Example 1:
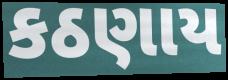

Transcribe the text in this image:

કઠણાય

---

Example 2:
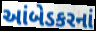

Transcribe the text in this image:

આંબેડકરનાં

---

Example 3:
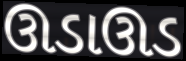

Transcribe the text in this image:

ઊડાઊડ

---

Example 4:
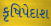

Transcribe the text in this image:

કૃષિપેદાશ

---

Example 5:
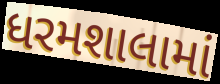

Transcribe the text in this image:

ધરમશાલામાં